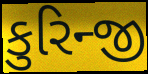
કુરિન્જી